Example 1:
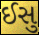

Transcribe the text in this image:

ઈસુ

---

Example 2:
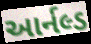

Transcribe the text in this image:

આર્નલ્ડ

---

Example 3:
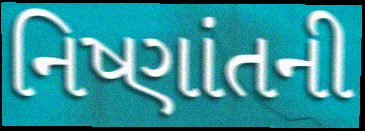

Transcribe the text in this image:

નિષ્ણાંતની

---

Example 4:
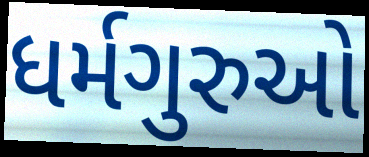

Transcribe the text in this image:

ધર્મગુરુઓ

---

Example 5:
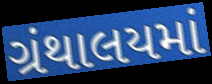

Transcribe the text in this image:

ગ્રંથાલયમાં